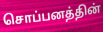
சொப்பனத்தின்